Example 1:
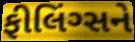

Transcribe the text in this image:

ફીલિંગ્સને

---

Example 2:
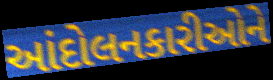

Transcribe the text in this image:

આંદોલનકારીઓને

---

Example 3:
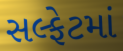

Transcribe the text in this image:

સલ્ફેટમાં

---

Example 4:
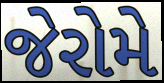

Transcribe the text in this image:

જેરોમે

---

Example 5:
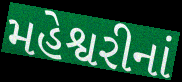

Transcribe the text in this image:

મહેશ્વરીનાં